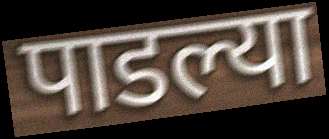
पाडल्या